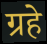
ग्रहे